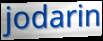
jodarin